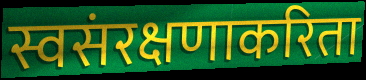
स्वसंरक्षणाकरिता